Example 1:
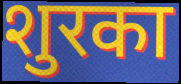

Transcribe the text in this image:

शुरका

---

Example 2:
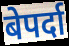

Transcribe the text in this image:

बेपर्दा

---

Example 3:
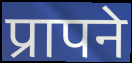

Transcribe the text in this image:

प्रापने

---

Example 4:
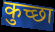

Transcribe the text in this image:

कुच्छा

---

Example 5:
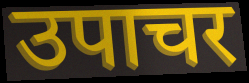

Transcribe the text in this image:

उपाचर